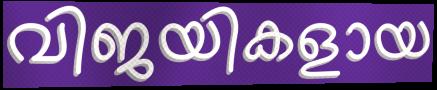
വിജയികളായ